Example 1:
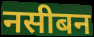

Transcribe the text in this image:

नसीबन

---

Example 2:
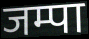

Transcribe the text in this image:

जम्पा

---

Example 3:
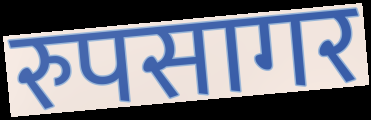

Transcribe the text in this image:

रुपसागर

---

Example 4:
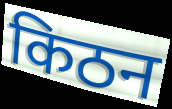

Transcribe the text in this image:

किठन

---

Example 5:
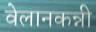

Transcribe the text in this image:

वेलानकन्नी